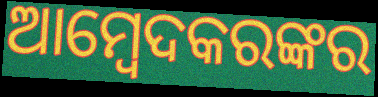
ଆମ୍ବେଦକରଙ୍କର